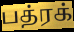
பத்ரக்